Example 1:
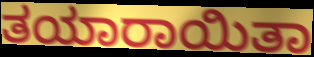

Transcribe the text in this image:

ತಯಾರಾಯಿತಾ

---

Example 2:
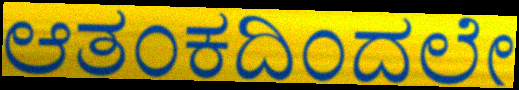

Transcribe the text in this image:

ಆತಂಕದಿಂದಲೇ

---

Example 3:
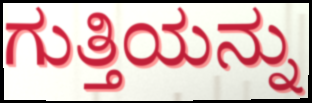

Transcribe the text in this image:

ಗುತ್ತಿಯನ್ನು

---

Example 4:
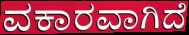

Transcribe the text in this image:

ವಕಾರವಾಗಿದೆ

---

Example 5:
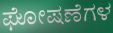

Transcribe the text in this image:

ಘೋಷಣೆಗಳ